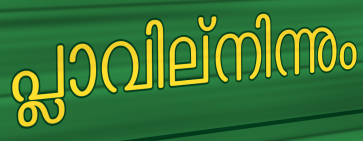
പ്ലാവില്നിന്നും